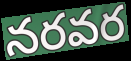
నరవర